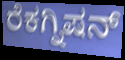
ರೆಕಗ್ನಿಷನ್